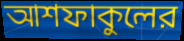
আশফাকুলের